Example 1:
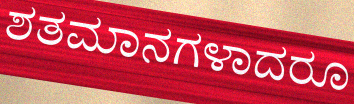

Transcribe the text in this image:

ಶತಮಾನಗಳಾದರೂ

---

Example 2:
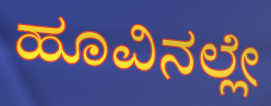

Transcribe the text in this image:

ಹೂವಿನಲ್ಲೇ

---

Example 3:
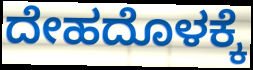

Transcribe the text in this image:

ದೇಹದೊಳಕ್ಕೆ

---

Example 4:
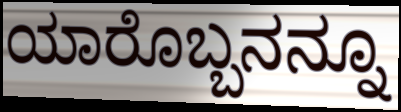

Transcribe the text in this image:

ಯಾರೊಬ್ಬನನ್ನೂ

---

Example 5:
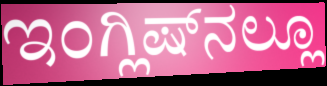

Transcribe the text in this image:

ಇಂಗ್ಲಿಷ್‌ನಲ್ಲೂ